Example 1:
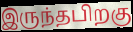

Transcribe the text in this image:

இருந்தபிறகு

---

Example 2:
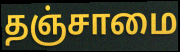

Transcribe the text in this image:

தஞ்சாமை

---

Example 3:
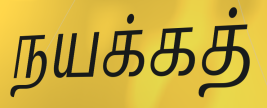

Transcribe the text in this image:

நயக்கத்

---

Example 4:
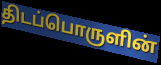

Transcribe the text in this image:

திடப்பொருளின்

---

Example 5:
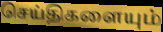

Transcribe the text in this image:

செய்திகளையும்